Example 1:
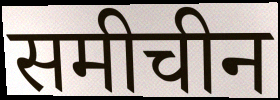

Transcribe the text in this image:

समीचीन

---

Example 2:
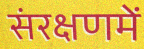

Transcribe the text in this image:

संरक्षणमें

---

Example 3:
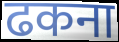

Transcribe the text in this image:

ढकना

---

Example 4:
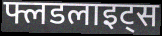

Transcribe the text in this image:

फ्लडलाइट्स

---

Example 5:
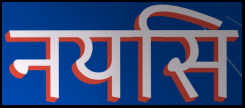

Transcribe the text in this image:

नयसि